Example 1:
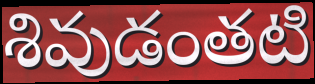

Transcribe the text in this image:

శివుడంతటి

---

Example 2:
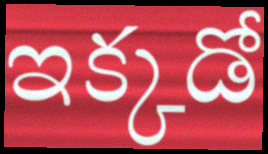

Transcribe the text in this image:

ఇక్కడో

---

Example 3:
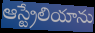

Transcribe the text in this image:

ఆస్ట్రేలియాను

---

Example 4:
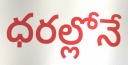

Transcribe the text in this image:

ధరల్లోనే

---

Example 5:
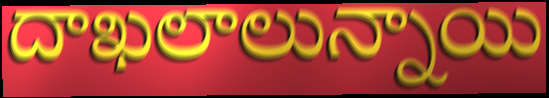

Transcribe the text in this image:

దాఖలాలున్నాయి